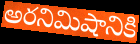
అరనిమిషానికి